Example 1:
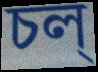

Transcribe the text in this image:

চল্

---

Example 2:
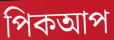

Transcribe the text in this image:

পিকআপ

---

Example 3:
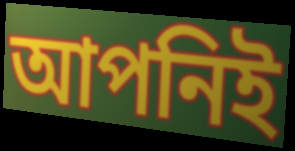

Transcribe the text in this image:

আপনিই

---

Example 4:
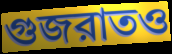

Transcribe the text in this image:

গুজরাতও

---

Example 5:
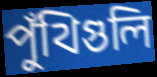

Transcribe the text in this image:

পুঁথিগুলি